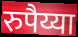
रुपैय्या